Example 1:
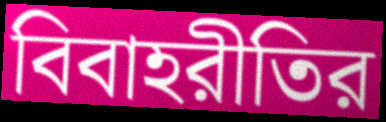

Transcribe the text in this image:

বিবাহরীতির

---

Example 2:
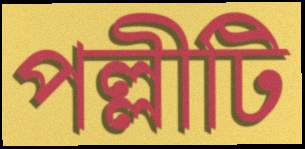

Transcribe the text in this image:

পল্লীটি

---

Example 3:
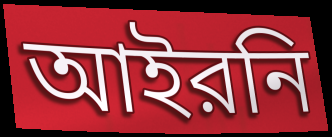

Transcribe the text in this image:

আইরনি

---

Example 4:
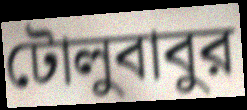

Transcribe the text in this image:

টোলুবাবুর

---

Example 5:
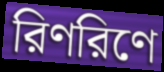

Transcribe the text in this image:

রিণরিণে